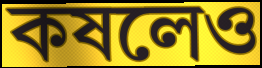
কষলেও